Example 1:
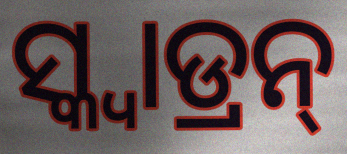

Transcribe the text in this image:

ସ୍କ୍ୱାଡ୍ରନ୍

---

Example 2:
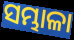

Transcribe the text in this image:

ସମ୍ଭାଳା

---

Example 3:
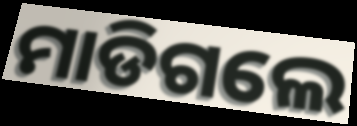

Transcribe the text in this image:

ମାଡିଗଲେ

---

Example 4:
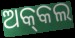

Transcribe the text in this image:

ଅକ୍‍କଲ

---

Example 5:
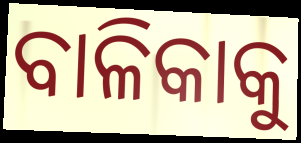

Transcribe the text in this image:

ବାଳିକାକୁ